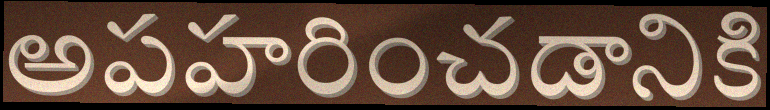
అపహరించడానికి